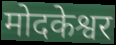
मोदकेश्वर